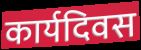
कार्यदिवस